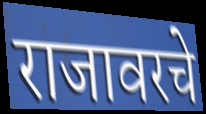
राजावरचे